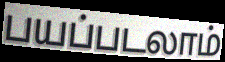
பயப்படலாம்